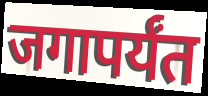
जगापर्यंत